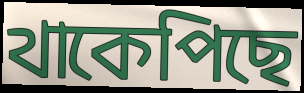
থাকেপিছে